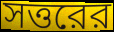
সত্তরের